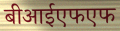
बीआईएफएफ